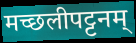
मच्छलीपट्टनम्